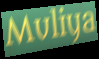
Muliya